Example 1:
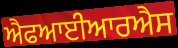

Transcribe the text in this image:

ਐਫਆਈਆਰਐਸ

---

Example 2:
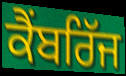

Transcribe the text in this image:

ਕੈਂਬਰਿੱਜ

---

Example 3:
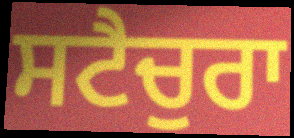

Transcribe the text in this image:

ਸਟੈਚੁਰਾ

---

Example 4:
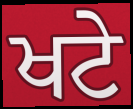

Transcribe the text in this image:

ਖਟੇ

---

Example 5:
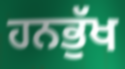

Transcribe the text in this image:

ਹਨਭੁੱਖ